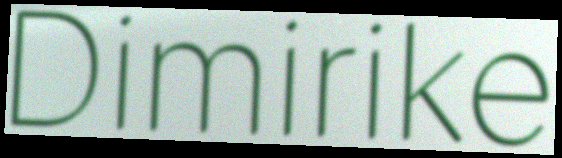
Dimirike